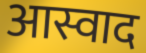
आस्‍वाद